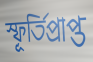
স্ফূর্তিপ্রাপ্ত